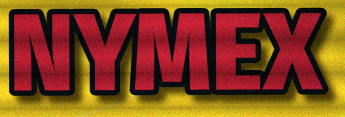
NYMEX